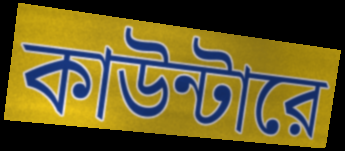
কাউন্টারে